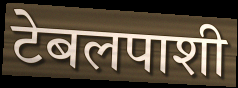
टेबलपाशी